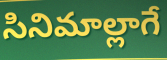
సినిమాల్లాగే